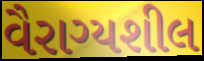
વૈરાગ્યશીલ